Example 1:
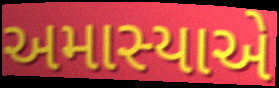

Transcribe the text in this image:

અમાસ્યાએ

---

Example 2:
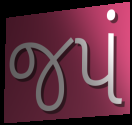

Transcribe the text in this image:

જપં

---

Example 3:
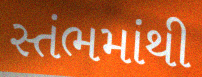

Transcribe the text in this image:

સ્તંભમાંથી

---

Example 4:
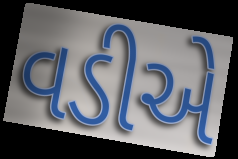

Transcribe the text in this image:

વડીએ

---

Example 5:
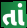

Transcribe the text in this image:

તાં